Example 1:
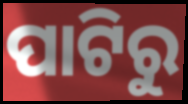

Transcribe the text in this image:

ପାଟିରୁ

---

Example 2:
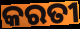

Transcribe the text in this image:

କରତୀ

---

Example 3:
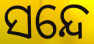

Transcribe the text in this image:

ସନ୍ଦେ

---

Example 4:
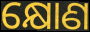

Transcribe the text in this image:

କ୍ଷୋଣ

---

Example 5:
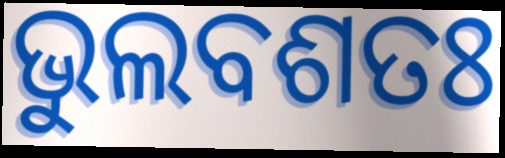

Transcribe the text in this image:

ଭୁଲବଶତଃ